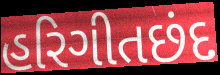
હરિગીતછંદ